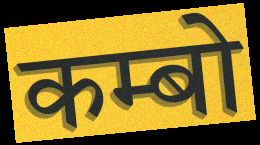
कम्बो